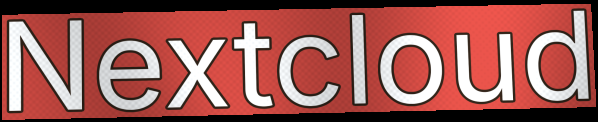
Nextcloud